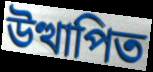
উত্থাপিত